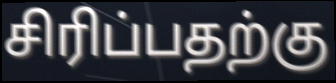
சிரிப்பதற்கு